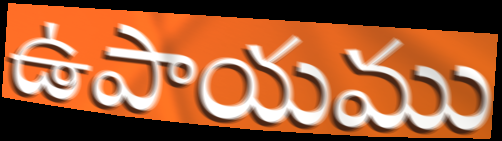
ఉపాయము